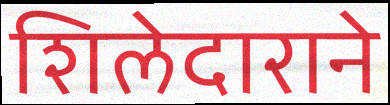
शिलेदाराने